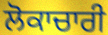
ਲੋਕਾਚਾਰੀ